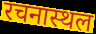
रचनास्थल